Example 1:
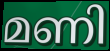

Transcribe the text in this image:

മണി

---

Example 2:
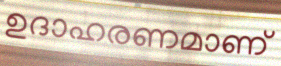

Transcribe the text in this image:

ഉദാഹരണമാണ്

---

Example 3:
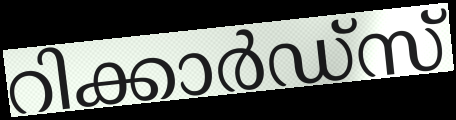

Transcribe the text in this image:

റിക്കാർഡ്സ്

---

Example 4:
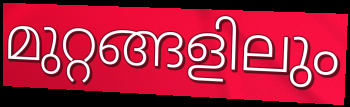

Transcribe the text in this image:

മുറ്റങ്ങളിലും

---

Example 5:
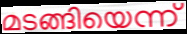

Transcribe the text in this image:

മടങ്ങിയെന്ന്